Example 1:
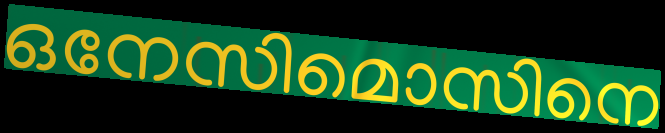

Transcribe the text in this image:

ഒനേസിമൊസിനെ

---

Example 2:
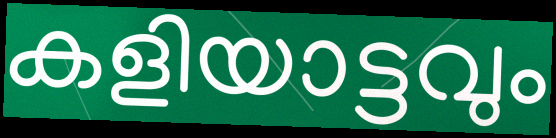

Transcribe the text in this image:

കളിയാട്ടവും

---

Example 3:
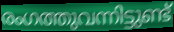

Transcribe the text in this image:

രംഗത്തുവന്നിട്ടുണ്ട്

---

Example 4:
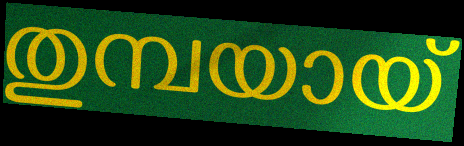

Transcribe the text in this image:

തുമ്പയായ്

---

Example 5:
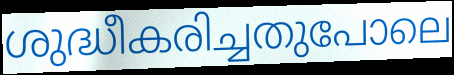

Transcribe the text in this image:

ശുദ്ധീകരിച്ചതുപോലെ